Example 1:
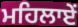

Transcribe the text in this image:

ਮਹਿਲਾਏਂ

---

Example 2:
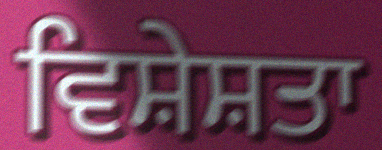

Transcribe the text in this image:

ਵਿਸ਼ੇਸ਼ਤਾ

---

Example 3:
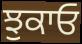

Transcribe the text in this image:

ਝੁਕਾਓ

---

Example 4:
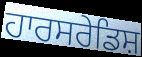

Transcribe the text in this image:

ਹਾਰਸਰੇਡਿਸ਼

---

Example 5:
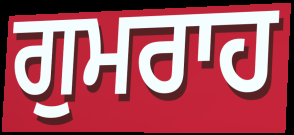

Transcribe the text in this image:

ਗੁਮਰਾਹ